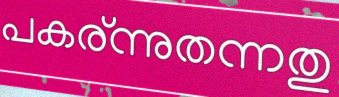
പകര്ന്നുതന്നതു